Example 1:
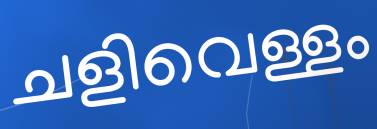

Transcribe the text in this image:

ചളിവെള്ളം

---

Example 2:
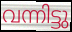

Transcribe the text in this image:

വന്നിട്ടു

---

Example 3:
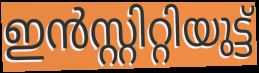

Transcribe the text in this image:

ഇൻസ്റ്റിറ്റിയുട്ട്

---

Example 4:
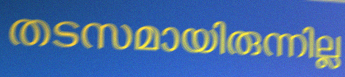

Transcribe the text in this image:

തടസമായിരുന്നില്ല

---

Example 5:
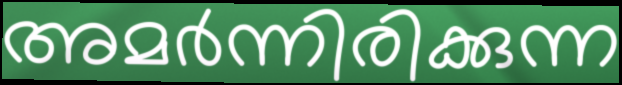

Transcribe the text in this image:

അമർന്നിരിക്കുന്ന